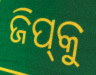
ଜିପ୍‍କୁ